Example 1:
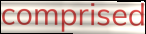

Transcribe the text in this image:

comprised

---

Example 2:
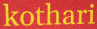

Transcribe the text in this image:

kothari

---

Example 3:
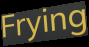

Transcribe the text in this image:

Frying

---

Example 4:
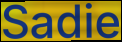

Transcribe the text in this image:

Sadie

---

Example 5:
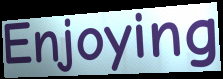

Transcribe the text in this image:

Enjoying